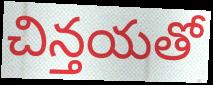
చిన్తయతో